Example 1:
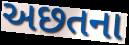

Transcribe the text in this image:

અછતના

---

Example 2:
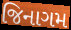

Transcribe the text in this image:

જિનાગમ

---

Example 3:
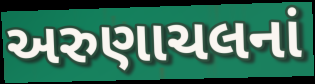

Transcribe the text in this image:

અરુણાચલનાં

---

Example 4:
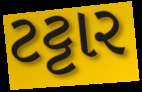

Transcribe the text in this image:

ટટ્ટાર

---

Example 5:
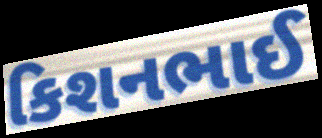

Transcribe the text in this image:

કિશનભાઈ